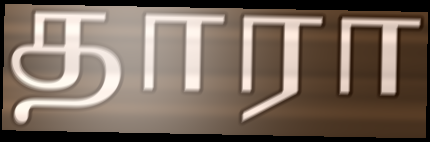
தாரா